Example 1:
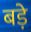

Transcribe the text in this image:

बड़े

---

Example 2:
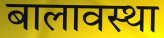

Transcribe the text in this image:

बालावस्था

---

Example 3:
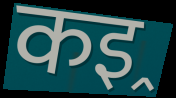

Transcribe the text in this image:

कइ्र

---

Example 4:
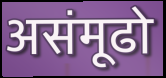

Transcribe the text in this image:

असंमूढो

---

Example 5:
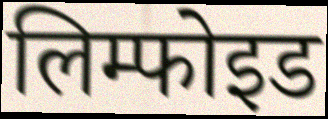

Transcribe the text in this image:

लिम्फोइड